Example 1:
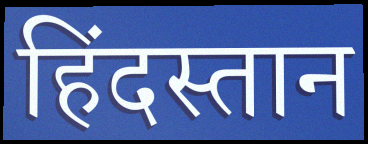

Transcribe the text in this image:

हिंदस्तान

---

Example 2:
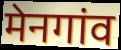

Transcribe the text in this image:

मेनगांव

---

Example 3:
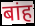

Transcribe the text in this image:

बांह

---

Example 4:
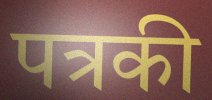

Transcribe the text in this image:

पत्रकी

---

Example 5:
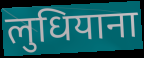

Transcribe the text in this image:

लुधियाना